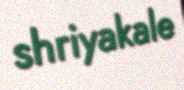
shriyakale